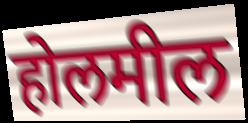
होलमील